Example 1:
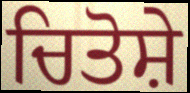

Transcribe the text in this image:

ਚਿਤੋਸ਼ੇ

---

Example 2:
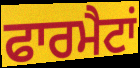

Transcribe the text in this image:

ਫਾਰਮੈਟਾਂ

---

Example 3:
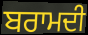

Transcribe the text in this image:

ਬਰਾਮਦੀ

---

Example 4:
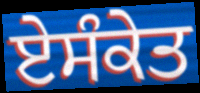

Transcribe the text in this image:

ਏਸੰਕੇਤ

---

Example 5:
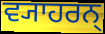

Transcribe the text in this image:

ਵ੍ਯਾਹਰਨ੍